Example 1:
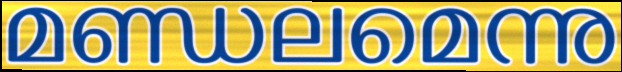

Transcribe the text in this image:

മണ്ഡലമെന്നു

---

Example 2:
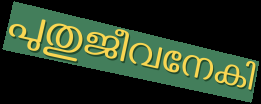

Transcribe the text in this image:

പുതുജീവനേകി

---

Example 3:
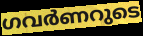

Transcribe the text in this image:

ഗവർണറുടെ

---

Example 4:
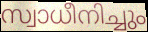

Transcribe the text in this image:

സ്വാധീനിച്ചും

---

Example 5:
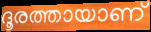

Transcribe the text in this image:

ദൂരത്തായാണ്